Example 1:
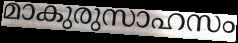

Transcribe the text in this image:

മാകുരുസാഹസം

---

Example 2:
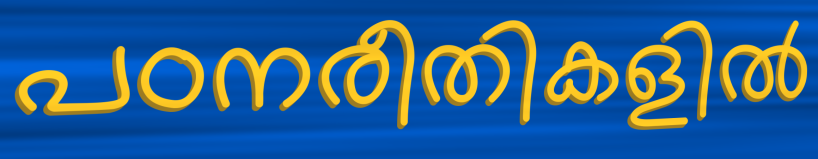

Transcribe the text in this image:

പഠനരീതികളിൽ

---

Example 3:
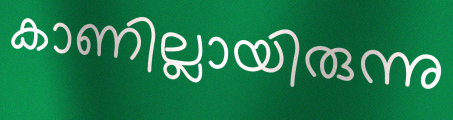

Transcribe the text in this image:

കാണില്ലായിരുന്നു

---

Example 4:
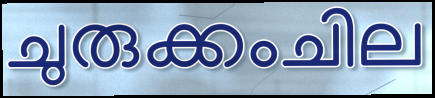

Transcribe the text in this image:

ചുരുക്കംചില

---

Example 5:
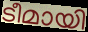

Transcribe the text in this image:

ടീമായി